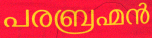
പരബ്രഹ്മൻ